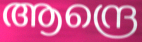
ആന്ദ്രെ